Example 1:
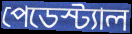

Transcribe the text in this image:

পেডেস্ট্যাল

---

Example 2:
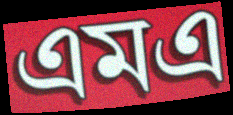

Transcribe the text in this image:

এমএ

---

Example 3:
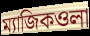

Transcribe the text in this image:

ম্যাজিকওলা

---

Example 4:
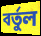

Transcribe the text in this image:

বর্তুল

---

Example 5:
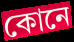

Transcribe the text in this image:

কোনে